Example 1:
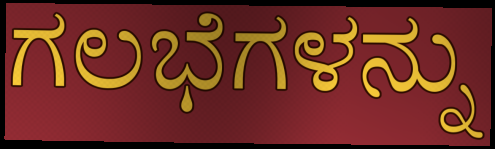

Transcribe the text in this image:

ಗಲಭೆಗಳನ್ನು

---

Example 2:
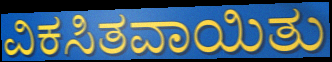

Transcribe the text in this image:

ವಿಕಸಿತವಾಯಿತು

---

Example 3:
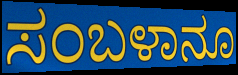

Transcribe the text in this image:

ಸಂಬಳಾನೂ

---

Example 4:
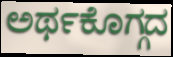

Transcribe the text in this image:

ಅರ್ಥಕೊಗ್ಗದ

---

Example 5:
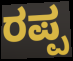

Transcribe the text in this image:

ರಪ್ಪ